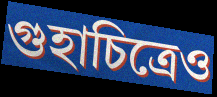
গুহাচিত্রেও